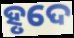
ହୃଦେ